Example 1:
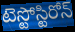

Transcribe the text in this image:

టెస్టోస్టిరోన్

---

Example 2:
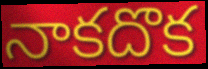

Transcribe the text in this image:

నాకదొక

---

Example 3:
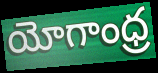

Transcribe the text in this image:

యోగాంధ్ర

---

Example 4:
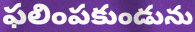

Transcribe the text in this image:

ఫలింపకుండును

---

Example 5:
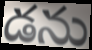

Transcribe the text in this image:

డను